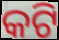
କଟି